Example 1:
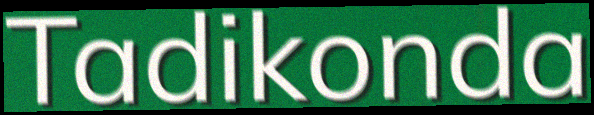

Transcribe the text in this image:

Tadikonda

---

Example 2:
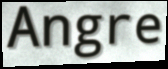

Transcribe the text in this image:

Angre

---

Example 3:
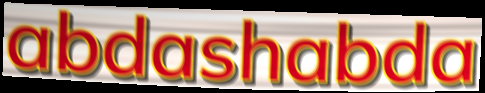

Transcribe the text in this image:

abdashabda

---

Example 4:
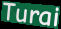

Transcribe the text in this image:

Turai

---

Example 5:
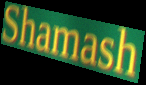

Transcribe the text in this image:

Shamash